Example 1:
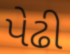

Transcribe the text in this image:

પેઢી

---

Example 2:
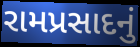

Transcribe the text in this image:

રામપ્રસાદનું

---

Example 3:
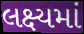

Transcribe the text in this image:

લક્ષ્યમાં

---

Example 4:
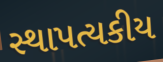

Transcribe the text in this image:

સ્થાપત્યકીય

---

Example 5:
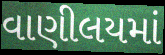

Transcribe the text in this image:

વાણીલયમાં